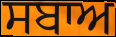
ਸਬਾਅ